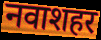
नवाशहर